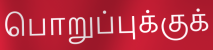
பொறுப்புக்குக்